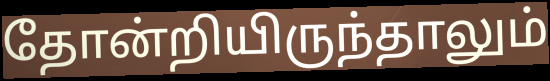
தோன்றியிருந்தாலும்